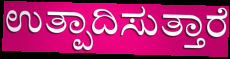
ಉತ್ಪಾದಿಸುತ್ತಾರೆ